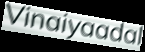
Vinaiyaadal